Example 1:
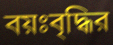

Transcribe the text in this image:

বয়ঃবৃদ্ধির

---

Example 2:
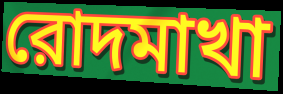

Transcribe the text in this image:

রোদমাখা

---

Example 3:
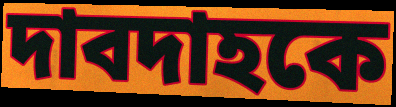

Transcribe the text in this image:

দাবদাহকে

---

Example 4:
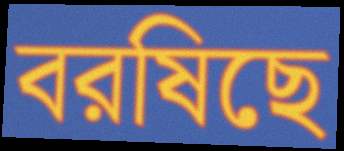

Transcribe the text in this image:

বরষিছে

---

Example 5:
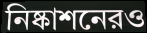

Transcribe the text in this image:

নিষ্কাশনেরও